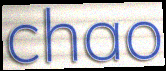
chao